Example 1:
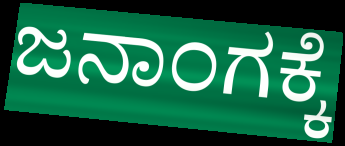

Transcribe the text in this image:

ಜನಾಂಗಕ್ಕೆ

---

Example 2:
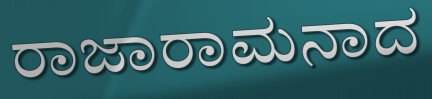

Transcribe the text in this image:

ರಾಜಾರಾಮನಾದ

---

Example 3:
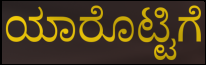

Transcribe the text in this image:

ಯಾರೊಟ್ಟಿಗೆ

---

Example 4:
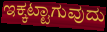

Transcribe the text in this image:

ಇಕ್ಕಟ್ಟಾಗುವುದು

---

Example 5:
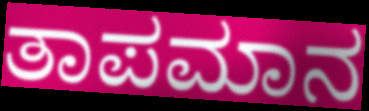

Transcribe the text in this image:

ತಾಪಮಾನ